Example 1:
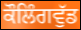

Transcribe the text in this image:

ਕੌਲਿੰਗਵੁੱਡ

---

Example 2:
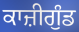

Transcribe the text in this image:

ਕਾਜ਼ੀਗੁੰਡ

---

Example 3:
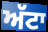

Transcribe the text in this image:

ਅੱਟਾ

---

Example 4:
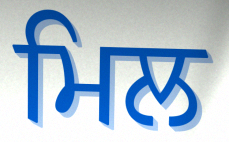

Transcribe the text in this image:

ਮਿਲ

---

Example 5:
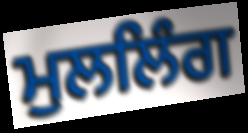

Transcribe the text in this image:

ਮੁਲਲਿੰਗ